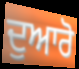
ਦੁਆਰੋ